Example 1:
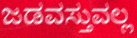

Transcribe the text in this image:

ಜಡವಸ್ತುವಲ್ಲ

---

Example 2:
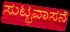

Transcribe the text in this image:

ಸುಟ್ಟವಾಸನೆ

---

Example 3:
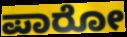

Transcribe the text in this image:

ಪಾರೋ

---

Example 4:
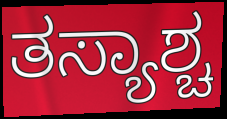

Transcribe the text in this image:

ತಸ್ಯಾಶ್ಚ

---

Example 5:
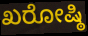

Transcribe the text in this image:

ಖರೋಷ್ಠಿ